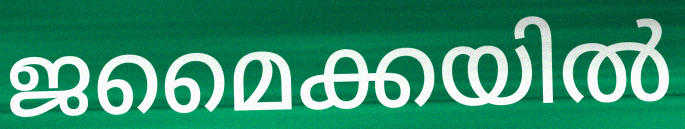
ജമൈക്കയിൽ